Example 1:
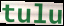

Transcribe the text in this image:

tulu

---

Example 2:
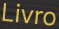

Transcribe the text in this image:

Livro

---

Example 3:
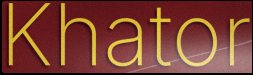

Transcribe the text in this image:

Khator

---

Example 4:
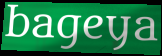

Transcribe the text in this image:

bageya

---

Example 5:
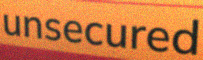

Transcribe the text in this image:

unsecured